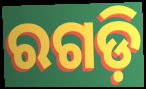
ରଗଡ଼ି